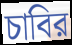
চাবির